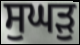
ਸੁਘੜੁ